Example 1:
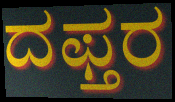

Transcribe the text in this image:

ದಫ್ತರ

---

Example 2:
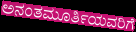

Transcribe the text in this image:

ಅನಂತಮೂರ್ತಿಯವರಿಗೆ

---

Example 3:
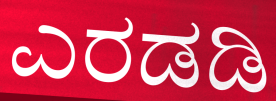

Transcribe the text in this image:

ಎರಡಡಿ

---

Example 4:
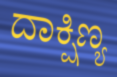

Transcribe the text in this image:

ದಾಕ್ಷಿಣ್ಯ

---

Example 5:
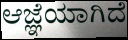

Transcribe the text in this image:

ಆಜ್ಞೆಯಾಗಿದೆ